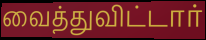
வைத்துவிட்டார்